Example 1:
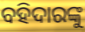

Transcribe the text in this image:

ବହିଦାରଙ୍କୁ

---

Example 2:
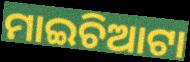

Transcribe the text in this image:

ମାଇଚିଆଟା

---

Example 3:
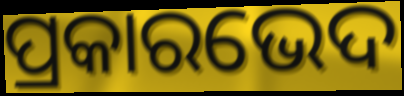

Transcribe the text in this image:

ପ୍ରକାରଭେଦ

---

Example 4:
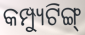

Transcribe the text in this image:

କମ୍ପ୍ୟୁଟିଙ୍ଗ୍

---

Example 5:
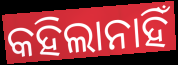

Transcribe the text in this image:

କହିଲାନାହିଁ